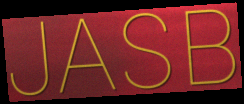
JASB